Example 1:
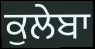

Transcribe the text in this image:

ਕੁਲੇਬਾ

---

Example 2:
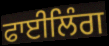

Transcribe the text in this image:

ਫਾਈਲਿੰਗ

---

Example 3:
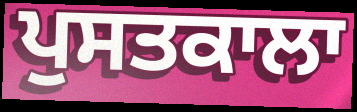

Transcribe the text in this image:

ਪੁਸਤਕਾਲਾ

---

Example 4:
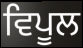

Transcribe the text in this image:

ਵਿਪੂਲ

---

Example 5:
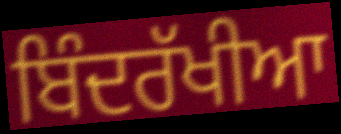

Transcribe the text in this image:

ਬਿੰਦਰੱਖੀਆ